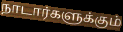
நாடார்களுக்கும்